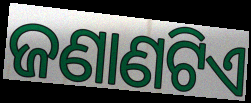
ଜଣାଣଟିଏ